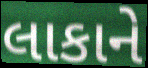
લાકાને